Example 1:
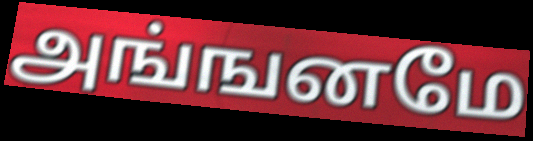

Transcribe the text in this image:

அங்ஙனமே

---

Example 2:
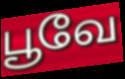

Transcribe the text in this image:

பூவே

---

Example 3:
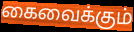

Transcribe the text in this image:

கைவைக்கும்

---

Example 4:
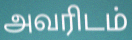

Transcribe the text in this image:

அவரிடம்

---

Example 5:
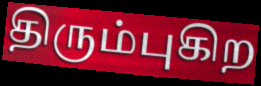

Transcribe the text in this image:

திரும்புகிற